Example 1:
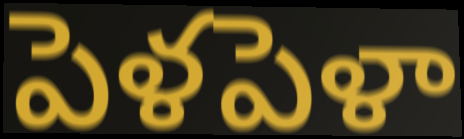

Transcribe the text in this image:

పెళపెళా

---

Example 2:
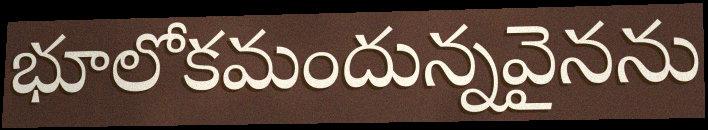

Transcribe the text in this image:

భూలోకమందున్నవైనను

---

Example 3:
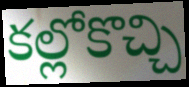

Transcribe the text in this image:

కల్లోకొచ్చి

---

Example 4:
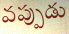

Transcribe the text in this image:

వప్పుడు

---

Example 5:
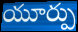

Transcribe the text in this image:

యూర్పు